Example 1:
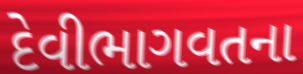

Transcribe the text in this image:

દેવીભાગવતના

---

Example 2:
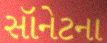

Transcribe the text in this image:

સૉનેટના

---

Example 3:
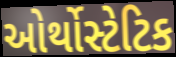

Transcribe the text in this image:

ઓર્થોસ્ટેટિક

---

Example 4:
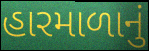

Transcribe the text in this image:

હારમાળાનું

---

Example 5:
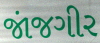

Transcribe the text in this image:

જાંજગીર